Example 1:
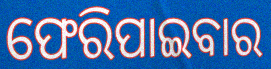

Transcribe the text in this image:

ଫେରିପାଇବାର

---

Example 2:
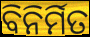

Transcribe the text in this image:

ବିନିର୍ମିତ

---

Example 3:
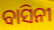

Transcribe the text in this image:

ବାସିନୀ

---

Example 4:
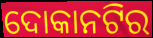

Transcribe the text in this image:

ଦୋକାନଟିର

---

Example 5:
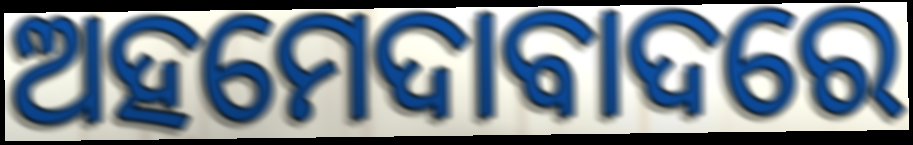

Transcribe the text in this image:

ଅହମେଦାବାଦରେ